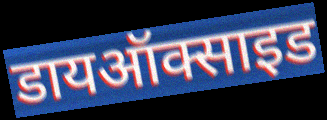
डायऑक्साइड